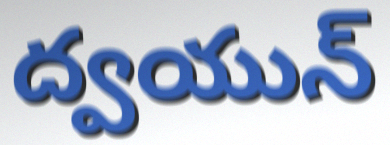
ద్వయున్